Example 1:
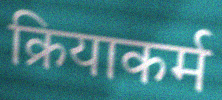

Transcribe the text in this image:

क्रियाकर्म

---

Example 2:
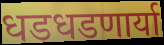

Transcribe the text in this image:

धडधडणार्या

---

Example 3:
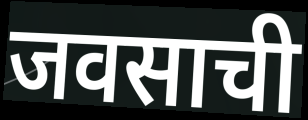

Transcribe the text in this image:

जवसाची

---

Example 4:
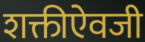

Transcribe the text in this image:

शक्तीऐवजी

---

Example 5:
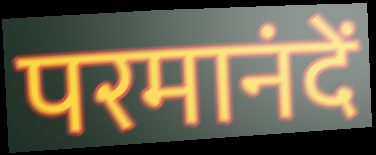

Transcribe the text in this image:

परमानंदें